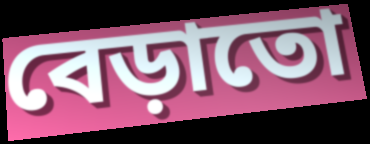
বেড়াতো